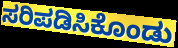
ಸರಿಪಡಿಸಿಕೊಂಡು